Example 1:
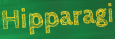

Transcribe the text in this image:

Hipparagi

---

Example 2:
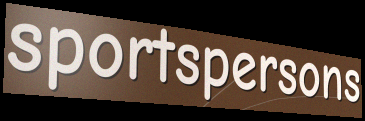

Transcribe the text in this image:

sportspersons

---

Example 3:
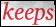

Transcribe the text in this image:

keeps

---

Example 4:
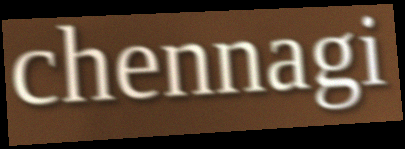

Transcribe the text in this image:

chennagi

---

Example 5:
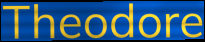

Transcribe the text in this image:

Theodore